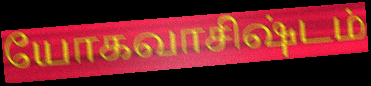
யோகவாசிஷ்டம்